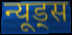
न्यूड्स